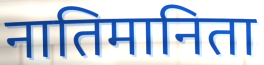
नातिमानिता